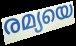
രമ്യയെ